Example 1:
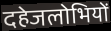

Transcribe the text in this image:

दहेजलोभियों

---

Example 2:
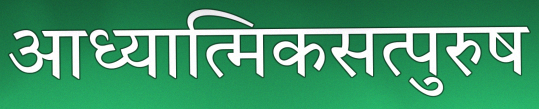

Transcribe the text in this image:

आध्यात्मिकसत्पुरुष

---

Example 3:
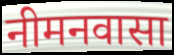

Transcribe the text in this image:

नीमनवासा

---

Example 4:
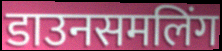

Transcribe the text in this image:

डाउनसमलिंग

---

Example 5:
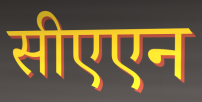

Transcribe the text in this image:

सीएएन